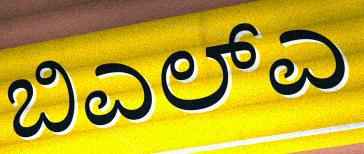
ಬಿಎಲ್ಎ